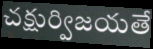
చక్షుర్విజయతే